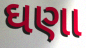
ઘણા